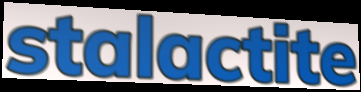
stalactite